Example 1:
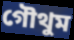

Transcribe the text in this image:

গৌথুম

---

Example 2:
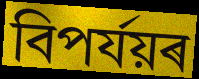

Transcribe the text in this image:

বিপৰ্যয়ৰ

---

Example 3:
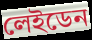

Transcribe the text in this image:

লেইডেন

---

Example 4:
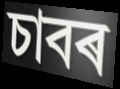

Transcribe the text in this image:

চাবৰ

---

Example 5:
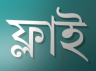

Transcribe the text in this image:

ফ্লাই